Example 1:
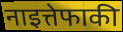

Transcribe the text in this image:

नाइत्तेफाकी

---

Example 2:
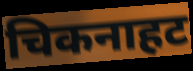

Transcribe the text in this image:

चिकनाहट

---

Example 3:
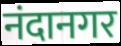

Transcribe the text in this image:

नंदानगर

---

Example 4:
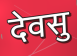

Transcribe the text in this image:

देवसु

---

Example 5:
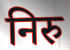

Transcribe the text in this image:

निरु